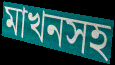
মাখনসহ